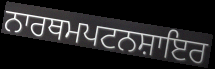
ਨਾਰਥਮਪਟਨਸ਼ਾਇਰ